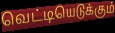
வெட்டியெடுக்கும்